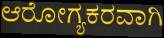
ಆರೋಗ್ಯಕರವಾಗಿ